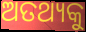
ଅତଥ୍ୟକୁ